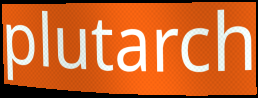
plutarch